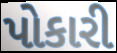
પોકારી